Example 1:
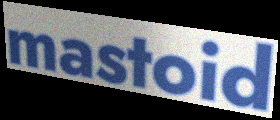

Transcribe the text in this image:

mastoid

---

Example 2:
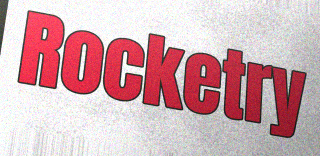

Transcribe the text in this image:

Rocketry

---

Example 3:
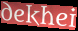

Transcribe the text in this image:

dekhei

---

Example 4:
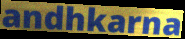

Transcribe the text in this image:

andhkarna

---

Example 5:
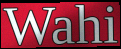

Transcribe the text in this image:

Wahi